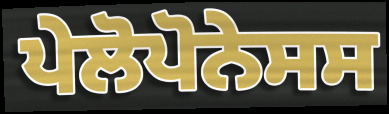
ਪੇਲੋਪੋਨੇਸਸ